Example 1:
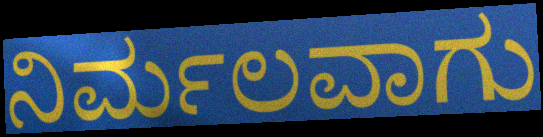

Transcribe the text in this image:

ನಿರ್ಮಲವಾಗು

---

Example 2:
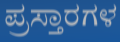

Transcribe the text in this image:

ಪ್ರಸ್ತಾರಗಳ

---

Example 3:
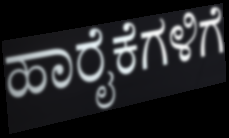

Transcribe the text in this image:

ಹಾರೈಕೆಗಳಿಗೆ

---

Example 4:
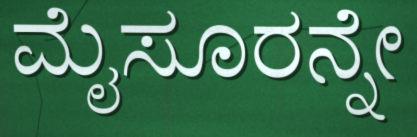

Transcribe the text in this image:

ಮೈಸೂರನ್ನೇ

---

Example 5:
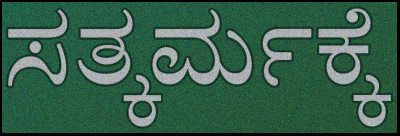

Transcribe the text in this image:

ಸತ್ಕರ್ಮಕ್ಕೆ